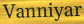
Vanniyar